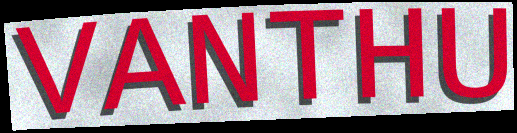
VANTHU